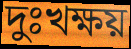
দুঃখক্ষয়